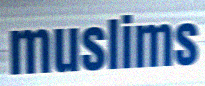
muslims